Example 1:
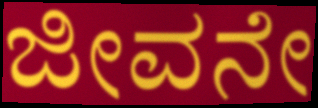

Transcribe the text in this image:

ಜೀವನೇ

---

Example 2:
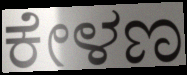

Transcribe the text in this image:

ಕೇಳಣ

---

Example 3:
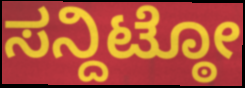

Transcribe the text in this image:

ಸನ್ದಿಟ್ಠೋ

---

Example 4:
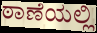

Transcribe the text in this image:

ಠಾಣೆಯಲ್ಲಿ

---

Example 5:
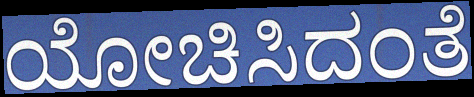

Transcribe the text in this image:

ಯೋಚಿಸಿದಂತೆ